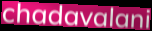
chadavalani